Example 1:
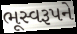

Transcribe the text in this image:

ભૂસ્વરૂપને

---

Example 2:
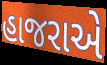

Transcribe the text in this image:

હાજરાએ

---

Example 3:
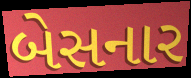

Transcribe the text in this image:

બેસનાર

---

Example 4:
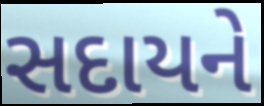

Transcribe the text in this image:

સદાયને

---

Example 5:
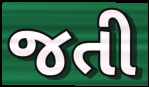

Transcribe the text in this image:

જતી